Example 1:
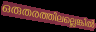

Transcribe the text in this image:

ഒരുതരത്തിലല്ലെങ്കിൽ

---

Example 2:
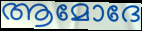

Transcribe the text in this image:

ആമോദേ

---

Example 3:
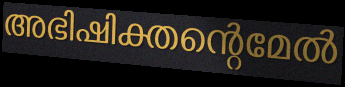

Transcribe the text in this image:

അഭിഷിക്തന്റെമേൽ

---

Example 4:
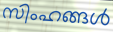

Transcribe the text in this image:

സിംഹങ്ങൾ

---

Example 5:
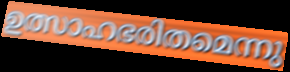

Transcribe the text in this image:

ഉത്സാഹഭരിതമെന്നു